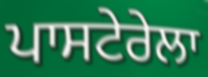
ਪਾਸਟੇਰੇਲਾ